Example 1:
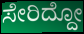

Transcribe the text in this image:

ಸೇರಿದ್ದೋ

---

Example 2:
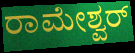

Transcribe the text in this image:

ರಾಮೇಶ್ವರ್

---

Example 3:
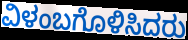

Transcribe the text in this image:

ವಿಳಂಬಗೊಳಿಸಿದರು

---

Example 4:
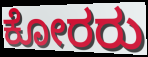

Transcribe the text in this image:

ಕೋರರು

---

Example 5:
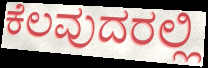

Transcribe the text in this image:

ಕೆಲವುದರಲ್ಲಿ